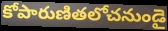
కోపారుణితలోచనుండై